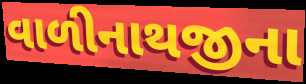
વાળીનાથજીના